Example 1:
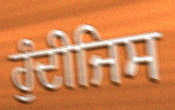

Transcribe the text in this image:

ਹੁੰਦੀਜਿਸ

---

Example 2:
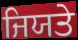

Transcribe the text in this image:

ਜਿਯਤੇ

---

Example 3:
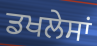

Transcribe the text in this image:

ਡਖਲੇਸਾਂ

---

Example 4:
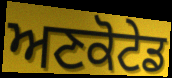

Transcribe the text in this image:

ਅਣਕੋਟੇਡ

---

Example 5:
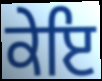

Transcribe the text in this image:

ਕੇਇ